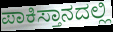
ಪಾಕಿಸ್ತಾನದಲ್ಲಿ